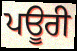
ਪਊਰੀ